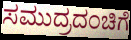
ಸಮುದ್ರದಂಚಿಗೆ